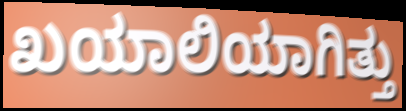
ಖಯಾಲಿಯಾಗಿತ್ತು